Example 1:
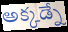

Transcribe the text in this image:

అక్కడ్నే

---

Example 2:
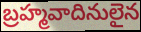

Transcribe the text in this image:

బ్రహ్మవాదినులైన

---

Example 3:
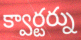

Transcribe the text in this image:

క్వార్టర్ను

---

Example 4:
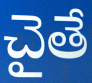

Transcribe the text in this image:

చైతే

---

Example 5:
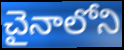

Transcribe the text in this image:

చైనాలోని